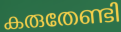
കരുതേണ്ടി